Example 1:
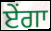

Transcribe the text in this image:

ਏਂਗਾ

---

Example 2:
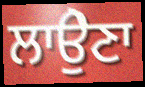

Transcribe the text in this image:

ਲਾਉੇਣਾ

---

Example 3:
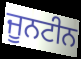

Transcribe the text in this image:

ਜੂਨਟੀਨ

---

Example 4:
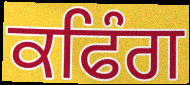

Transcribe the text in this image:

ਕਫਿੰਗ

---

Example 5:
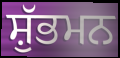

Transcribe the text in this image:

ਸ਼ੁੱਭਮਨ